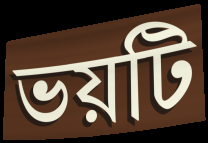
ভয়টি